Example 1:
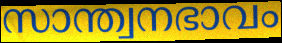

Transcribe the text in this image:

സാന്ത്വനഭാവം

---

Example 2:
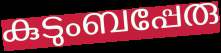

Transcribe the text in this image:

കുടുംബപ്പേരു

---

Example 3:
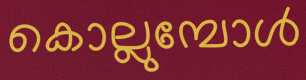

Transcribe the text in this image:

കൊല്ലുമ്പോൾ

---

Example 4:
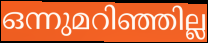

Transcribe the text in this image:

ഒന്നുമറിഞ്ഞില്ല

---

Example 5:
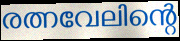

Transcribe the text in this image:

രത്നവേലിന്റെ